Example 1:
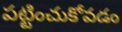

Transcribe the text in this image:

పట్టించుకోవడం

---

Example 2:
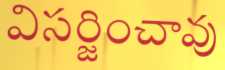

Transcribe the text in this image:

విసర్జించావు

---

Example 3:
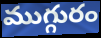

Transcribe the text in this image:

ముగ్గురం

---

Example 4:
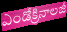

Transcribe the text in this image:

ఎండోక్రినాలజీ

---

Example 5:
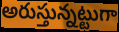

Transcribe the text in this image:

అరుస్తున్నట్టుగా